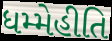
ધમ્મેહીતિ